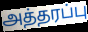
அத்தரப்பு